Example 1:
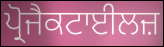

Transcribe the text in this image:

ਪ੍ਰੋਜੈਕਟਾਈਲਜ਼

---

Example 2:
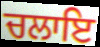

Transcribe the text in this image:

ਚਲਾਇ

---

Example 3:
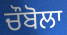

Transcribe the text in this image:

ਚੌਬੋਲਾ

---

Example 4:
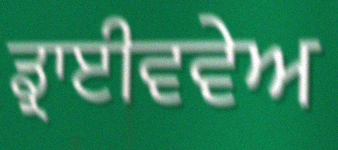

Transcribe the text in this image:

ਡ੍ਰਾਈਵਵੇਅ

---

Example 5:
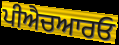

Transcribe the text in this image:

ਪੀਐਚਆਰਓ